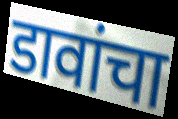
डावांचा